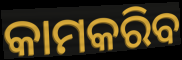
କାମକରିବ